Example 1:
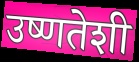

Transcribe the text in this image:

उष्णतेशी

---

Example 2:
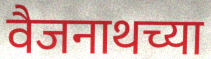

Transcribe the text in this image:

वैजनाथच्या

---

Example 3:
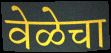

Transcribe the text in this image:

वेळेचा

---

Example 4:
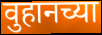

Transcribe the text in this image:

वुहानच्या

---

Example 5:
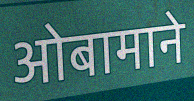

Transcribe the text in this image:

ओबामाने